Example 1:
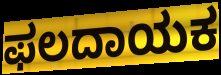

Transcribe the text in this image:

ಫಲದಾಯಕ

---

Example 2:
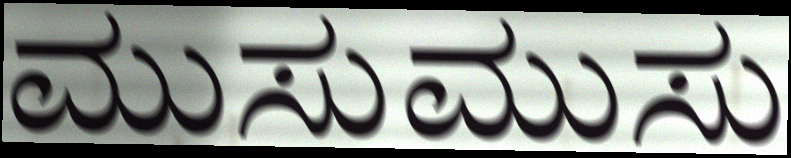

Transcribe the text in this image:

ಮುಸುಮುಸು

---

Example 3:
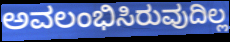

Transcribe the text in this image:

ಅವಲಂಭಿಸಿರುವುದಿಲ್ಲ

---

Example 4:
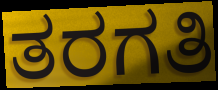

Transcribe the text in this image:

ತರಗತಿ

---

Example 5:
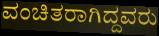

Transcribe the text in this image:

ವಂಚಿತರಾಗಿದ್ದವರು